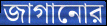
জাগানোর